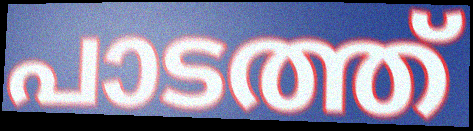
പാടത്ത്